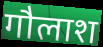
गौलाश